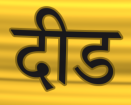
दीड